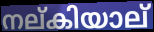
നല്കിയാല്